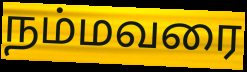
நம்மவரை